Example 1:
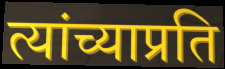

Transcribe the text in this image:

त्यांच्याप्रति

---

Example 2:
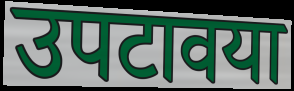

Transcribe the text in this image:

उपटावया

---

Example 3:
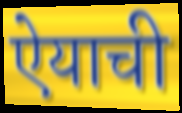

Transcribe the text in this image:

ऐयाची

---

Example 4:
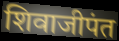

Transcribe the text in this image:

शिवाजीपंत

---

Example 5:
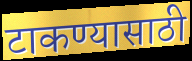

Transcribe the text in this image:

टाकण्यासाठी